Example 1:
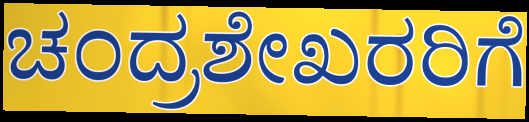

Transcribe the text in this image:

ಚಂದ್ರಶೇಖರರಿಗೆ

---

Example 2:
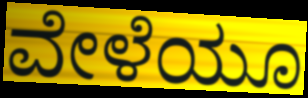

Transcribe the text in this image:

ವೇಳೆಯೂ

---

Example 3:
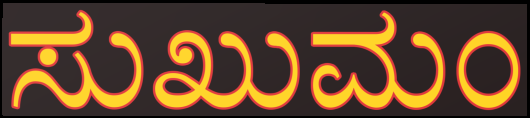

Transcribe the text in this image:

ಸುಖುಮಂ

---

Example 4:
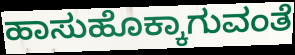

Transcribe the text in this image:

ಹಾಸುಹೊಕ್ಕಾಗುವಂತೆ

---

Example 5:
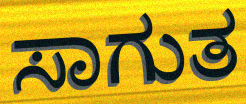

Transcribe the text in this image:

ಸಾಗುತ